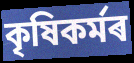
কৃষিকৰ্মৰ